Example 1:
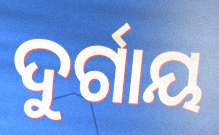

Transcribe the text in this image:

ଦୁର୍ଗାୟ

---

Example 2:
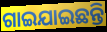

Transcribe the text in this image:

ଗାଇଯାଇଛନ୍ତି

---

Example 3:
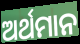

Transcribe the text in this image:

ଅର୍ଥମାନ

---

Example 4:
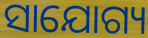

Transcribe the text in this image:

ସାଯୋଗ୍ୟ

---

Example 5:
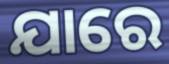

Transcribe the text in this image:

ଯାରେ